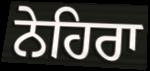
ਨੇਹਿਰਾ